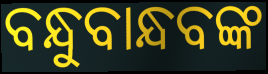
ବନ୍ଧୁବାନ୍ଧବଙ୍କ